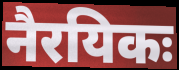
नैरयिकः